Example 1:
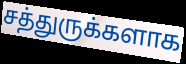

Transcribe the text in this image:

சத்துருக்களாக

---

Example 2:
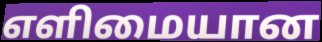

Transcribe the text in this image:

எளிமையான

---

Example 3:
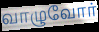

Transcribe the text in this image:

வாழுவோர்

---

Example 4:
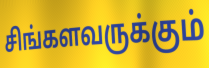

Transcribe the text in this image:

சிங்களவருக்கும்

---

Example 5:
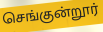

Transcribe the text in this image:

செங்குன்றூர்